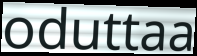
oduttaa